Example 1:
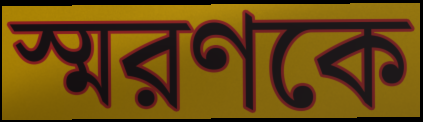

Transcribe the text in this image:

স্মরণকে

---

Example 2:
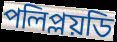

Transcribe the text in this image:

পলিপ্লয়ডি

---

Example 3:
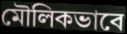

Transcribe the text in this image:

মৌলিকভাবে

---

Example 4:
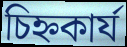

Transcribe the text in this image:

চিহ্নকার্য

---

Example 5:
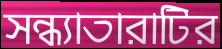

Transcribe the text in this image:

সন্ধ্যাতারাটির